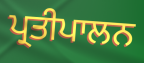
ਪ੍ਰਤੀਪਾਲਨ